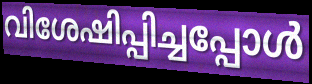
വിശേഷിപ്പിച്ചപ്പോൾ